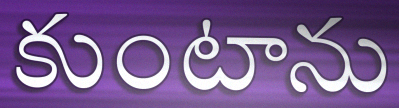
కుంటాను